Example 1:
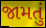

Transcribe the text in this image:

જામતું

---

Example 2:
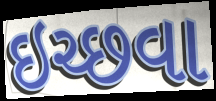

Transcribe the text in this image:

ઇચ્છવા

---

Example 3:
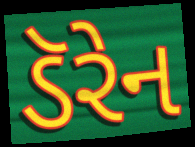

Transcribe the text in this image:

ડૅરેન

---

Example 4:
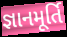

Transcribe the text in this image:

જ્ઞાનમૂર્તિ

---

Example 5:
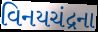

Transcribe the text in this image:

વિનયચંદ્રના